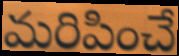
మరిపించే